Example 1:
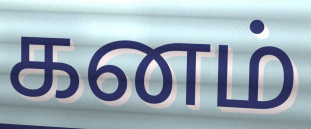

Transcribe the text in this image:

கனம்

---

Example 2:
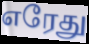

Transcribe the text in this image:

எரேது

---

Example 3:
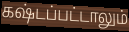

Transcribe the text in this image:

கஷ்டப்பட்டாலும்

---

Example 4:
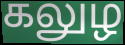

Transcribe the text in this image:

கலுழ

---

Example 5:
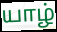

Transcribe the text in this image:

யாழ்